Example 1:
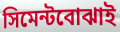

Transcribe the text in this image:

সিমেন্টবোঝাই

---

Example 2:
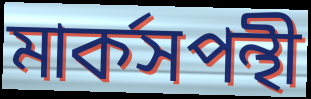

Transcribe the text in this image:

মার্কসপন্থী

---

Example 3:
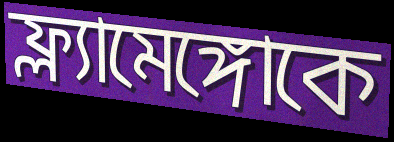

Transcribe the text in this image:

ফ্ল্যামেঙ্গোকে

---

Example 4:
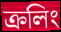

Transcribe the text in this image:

ক্রলিং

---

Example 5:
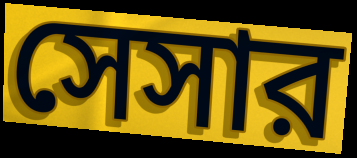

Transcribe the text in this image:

সেসার